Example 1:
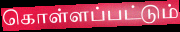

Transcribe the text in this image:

கொள்ளப்பட்டும்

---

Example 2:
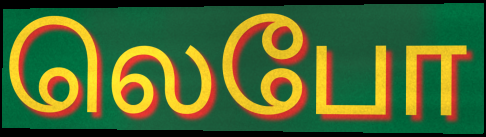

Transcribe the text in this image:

லெபோ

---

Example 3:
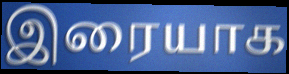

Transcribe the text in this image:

இரையாக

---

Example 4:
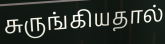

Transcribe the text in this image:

சுருங்கியதால்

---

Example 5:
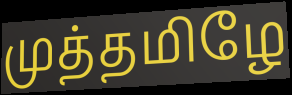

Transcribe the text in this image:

முத்தமிழே